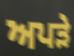
ਅਪੜੇ